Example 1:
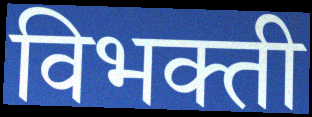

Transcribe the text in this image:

विभक्ती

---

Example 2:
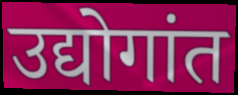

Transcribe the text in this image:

उद्योगांत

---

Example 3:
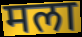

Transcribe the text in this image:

मला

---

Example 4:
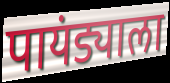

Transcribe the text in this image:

पायंड्याला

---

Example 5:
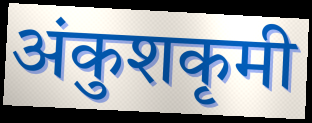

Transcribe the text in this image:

अंकुशकृमी